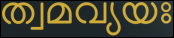
ത്വമവ്യയഃ